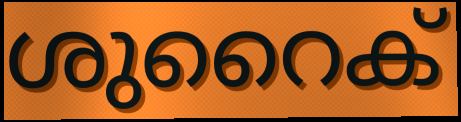
ശുറൈക്